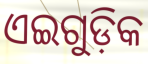
ଏଇଗୁଡ଼ିକ